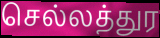
செல்லத்துர